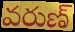
వరుణ్